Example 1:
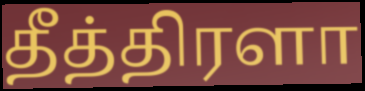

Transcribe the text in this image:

தீத்திரளா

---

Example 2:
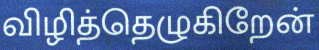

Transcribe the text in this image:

விழித்தெழுகிறேன்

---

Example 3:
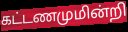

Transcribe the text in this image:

கட்டணமுமின்றி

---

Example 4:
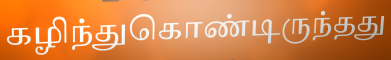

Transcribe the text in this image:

கழிந்துகொண்டிருந்தது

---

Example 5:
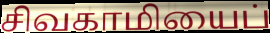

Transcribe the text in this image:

சிவகாமியைப்